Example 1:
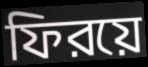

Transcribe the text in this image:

ফিরয়ে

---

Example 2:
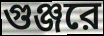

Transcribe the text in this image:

গুঞ্জরে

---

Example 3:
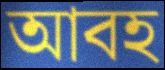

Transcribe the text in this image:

আবহ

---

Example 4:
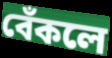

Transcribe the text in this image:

বেঁকলে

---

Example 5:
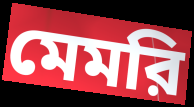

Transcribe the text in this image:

মেমরি